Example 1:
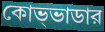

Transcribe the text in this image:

কোভ্ভাডার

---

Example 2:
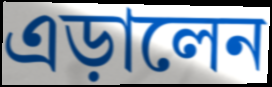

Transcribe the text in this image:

এড়ালেন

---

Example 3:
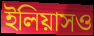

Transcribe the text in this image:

ইলিয়াসও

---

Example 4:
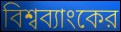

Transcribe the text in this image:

বিশ্বব্যাংকের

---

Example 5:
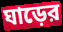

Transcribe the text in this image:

ঘাড়ের